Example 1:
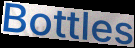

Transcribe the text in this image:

Bottles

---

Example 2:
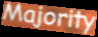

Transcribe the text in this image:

Majority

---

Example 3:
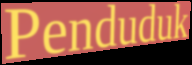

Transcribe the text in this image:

Penduduk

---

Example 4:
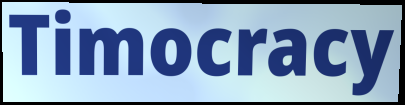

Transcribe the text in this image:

Timocracy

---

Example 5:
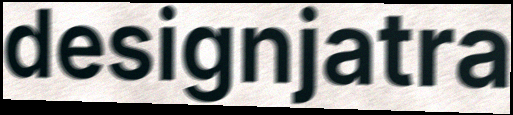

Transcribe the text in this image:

designjatra